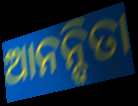
ଆନନ୍ଦିତା